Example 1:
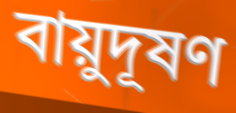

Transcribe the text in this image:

বায়ুদূষণ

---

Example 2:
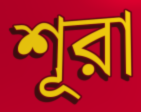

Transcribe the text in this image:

শূরা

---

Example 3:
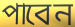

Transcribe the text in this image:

পাবেন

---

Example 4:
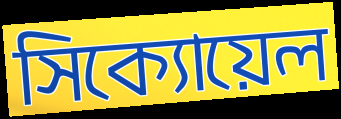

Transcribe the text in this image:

সিক্যোয়েল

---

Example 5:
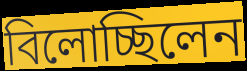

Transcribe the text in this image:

বিলোচ্ছিলেন